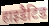
हाइडैटिड